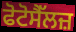
ਫੋਟੋਸੈੱਲਜ਼